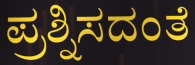
ಪ್ರಶ್ನಿಸದಂತೆ